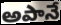
అపానే